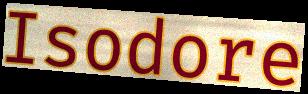
Isodore